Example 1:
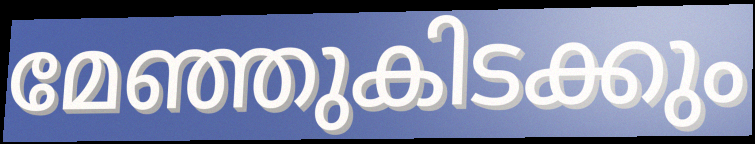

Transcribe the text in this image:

മേഞ്ഞുകിടക്കും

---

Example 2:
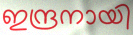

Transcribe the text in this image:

ഇന്ദ്രനായി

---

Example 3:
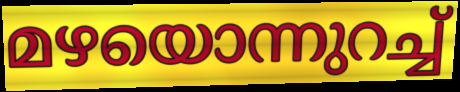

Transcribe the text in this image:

മഴയൊന്നുറച്ച്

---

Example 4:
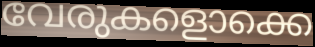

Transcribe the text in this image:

വേരുകളൊക്കെ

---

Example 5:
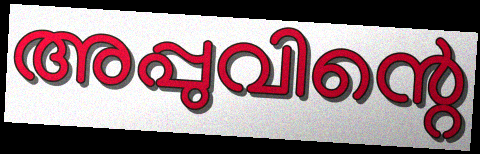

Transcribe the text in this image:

അപ്പുവിന്റെ